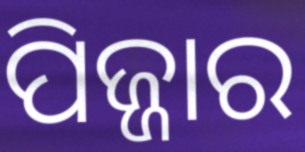
ପିଜ୍ଜାର